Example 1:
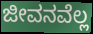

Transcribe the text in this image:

ಜೀವನವೆಲ್ಲ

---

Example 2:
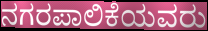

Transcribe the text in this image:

ನಗರಪಾಲಿಕೆಯವರು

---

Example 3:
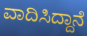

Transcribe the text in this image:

ವಾದಿಸಿದ್ದಾನೆ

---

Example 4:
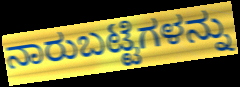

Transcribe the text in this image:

ನಾರುಬಟ್ಟೆಗಳನ್ನು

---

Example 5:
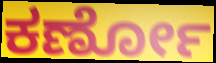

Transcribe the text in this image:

ಕರ್ಣೋ